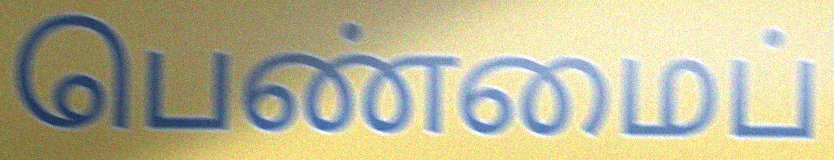
பெண்மைப்